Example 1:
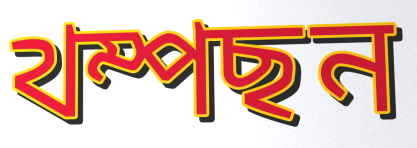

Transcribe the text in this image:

থম্পছন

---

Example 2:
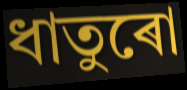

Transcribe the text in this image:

ধাতুৰো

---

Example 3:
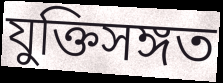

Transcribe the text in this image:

যুক্তিসঙ্গত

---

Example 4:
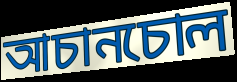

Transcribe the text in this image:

আচানচোল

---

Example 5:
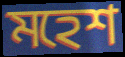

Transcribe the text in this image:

মহেশ